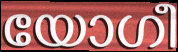
യോഗീ